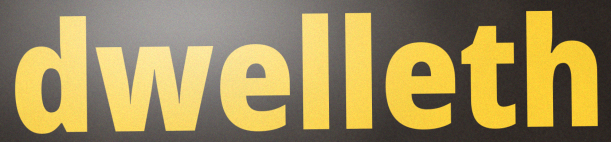
dwelleth